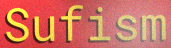
Sufism